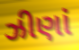
ઝીણાં